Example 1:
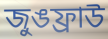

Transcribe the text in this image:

জুঙফ্রাউ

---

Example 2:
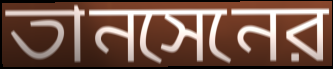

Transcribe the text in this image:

তানসেনের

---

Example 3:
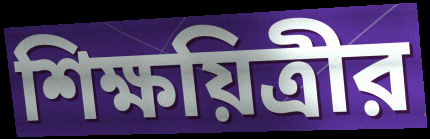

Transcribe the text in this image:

শিক্ষয়িত্রীর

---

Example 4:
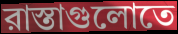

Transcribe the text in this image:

রাস্তাগুলোতে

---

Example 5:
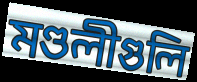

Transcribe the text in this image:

মণ্ডলীগুলি